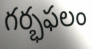
గర్భఫలం